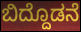
ಬಿದ್ದೊಡನೆ